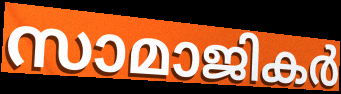
സാമാജികർ